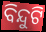
ବିନ୍ଦୁଟି